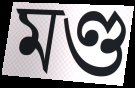
মণ্ড